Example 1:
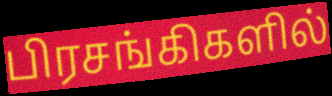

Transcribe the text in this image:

பிரசங்கிகளில்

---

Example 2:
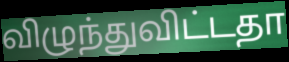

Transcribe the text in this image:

விழுந்துவிட்டதா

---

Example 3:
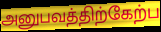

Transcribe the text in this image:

அனுபவத்திற்கேற்ப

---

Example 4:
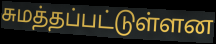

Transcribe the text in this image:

சுமத்தப்பட்டுள்ளன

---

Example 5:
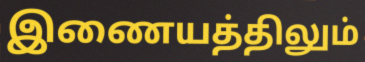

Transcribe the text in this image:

இணையத்திலும்